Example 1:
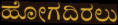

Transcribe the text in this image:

ಹೋಗದಿರಲು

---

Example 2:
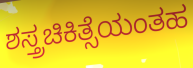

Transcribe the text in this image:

ಶಸ್ತ್ರಚಿಕಿತ್ಸೆಯಂತಹ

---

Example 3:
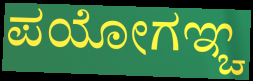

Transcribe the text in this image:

ಪಯೋಗಞ್ಚ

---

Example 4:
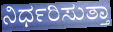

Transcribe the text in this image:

ನಿರ್ಧರಿಸುತ್ತಾ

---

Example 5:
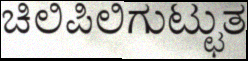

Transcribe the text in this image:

ಚಿಲಿಪಿಲಿಗುಟ್ಟುತ